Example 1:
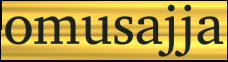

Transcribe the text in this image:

omusajja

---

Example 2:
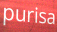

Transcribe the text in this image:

purisa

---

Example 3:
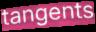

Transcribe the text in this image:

tangents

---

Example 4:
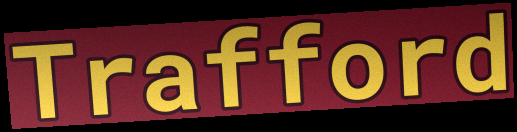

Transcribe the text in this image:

Trafford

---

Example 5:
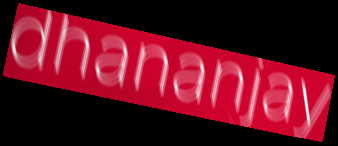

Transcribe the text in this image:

dhananjay